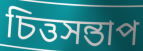
চিত্তসন্তাপ